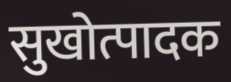
सुखोत्पादक